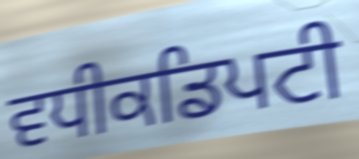
ਵਧੀਕਡਿਪਟੀ